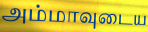
அம்மாவுடைய